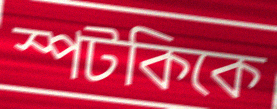
স্পটকিকে